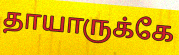
தாயாருக்கே